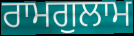
ਰਾਮਗੁਲਾਮ